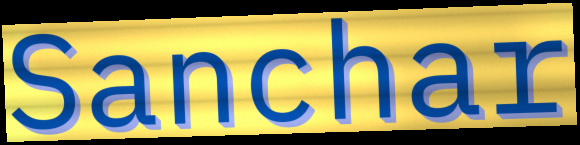
Sanchar